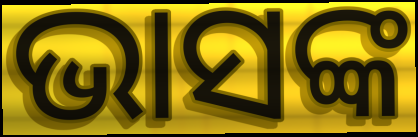
ଭାସଙ୍କ